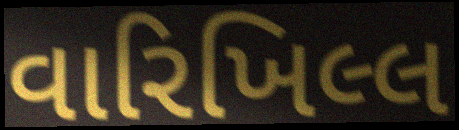
વારિખિલ્લ